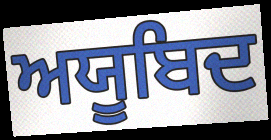
ਅਯੂਬਿਦ